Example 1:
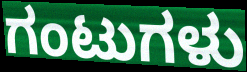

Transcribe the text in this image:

ಗಂಟುಗಳು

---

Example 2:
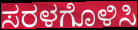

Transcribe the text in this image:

ಸರಳಗೊಳಿಸಿ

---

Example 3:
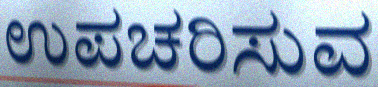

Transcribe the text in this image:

ಉಪಚರಿಸುವ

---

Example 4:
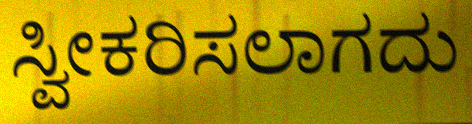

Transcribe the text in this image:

ಸ್ವೀಕರಿಸಲಾಗದು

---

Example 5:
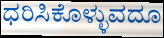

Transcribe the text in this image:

ಧರಿಸಿಕೊಳ್ಳುವದೂ